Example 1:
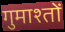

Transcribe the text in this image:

गुमाश्तों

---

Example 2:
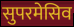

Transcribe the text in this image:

सुपरमेसिव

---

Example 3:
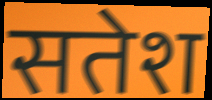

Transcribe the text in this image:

सतेश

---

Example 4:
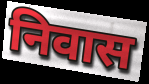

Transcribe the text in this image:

निवास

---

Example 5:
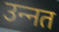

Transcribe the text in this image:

उन्‍नत